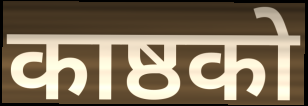
काष्ठको